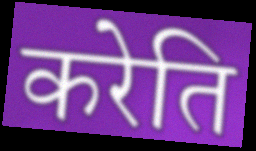
करेति